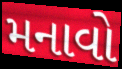
મનાવો